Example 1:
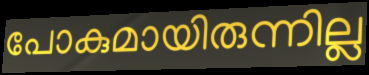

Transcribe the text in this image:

പോകുമായിരുന്നില്ല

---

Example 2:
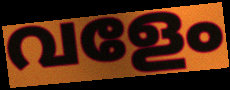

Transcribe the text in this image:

വളേം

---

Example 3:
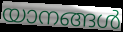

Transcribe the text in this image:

യാനങ്ങൾ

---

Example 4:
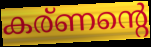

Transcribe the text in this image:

കര്ണന്റെ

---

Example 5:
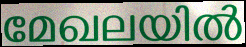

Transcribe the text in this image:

മേഖലയിൽ